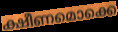
ക്ഷീണമൊക്കെ